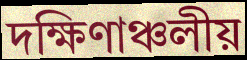
দক্ষিণাঞ্চলীয়